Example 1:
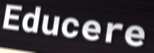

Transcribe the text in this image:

Educere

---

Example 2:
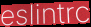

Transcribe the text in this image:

eslintrc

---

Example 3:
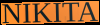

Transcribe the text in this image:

NIKITA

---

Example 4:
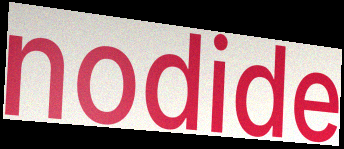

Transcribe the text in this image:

nodide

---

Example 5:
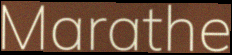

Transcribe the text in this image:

Marathe